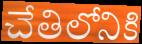
చేతిలోనికి